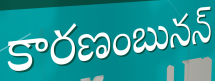
కారణంబునన్